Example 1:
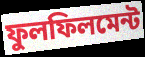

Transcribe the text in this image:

ফুলফিলমেন্ট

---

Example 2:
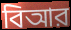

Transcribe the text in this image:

বিআর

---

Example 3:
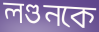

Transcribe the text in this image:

লণ্ডনকে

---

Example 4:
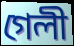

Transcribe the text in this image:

গেলী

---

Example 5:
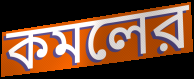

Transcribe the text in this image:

কমলের